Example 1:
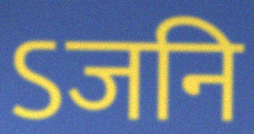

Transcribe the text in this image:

ऽजनि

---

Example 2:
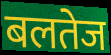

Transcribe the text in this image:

बलतेज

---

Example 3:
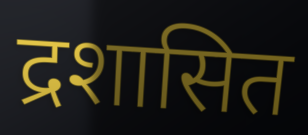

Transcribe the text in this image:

द्रशासित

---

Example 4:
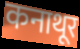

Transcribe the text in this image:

कनाथूर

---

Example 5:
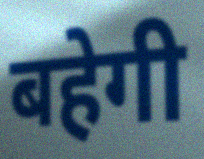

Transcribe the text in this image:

बहेगी